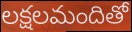
లక్షలమందితో